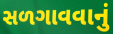
સળગાવવાનું